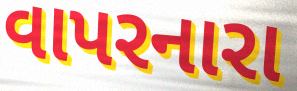
વાપરનારા